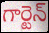
గార్టెన్